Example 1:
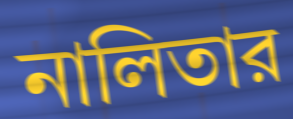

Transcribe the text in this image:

নালিতার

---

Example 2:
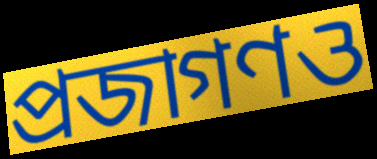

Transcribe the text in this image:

প্রজাগণও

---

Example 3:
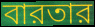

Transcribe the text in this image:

বারতার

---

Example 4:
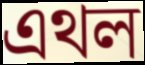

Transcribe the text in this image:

এথল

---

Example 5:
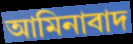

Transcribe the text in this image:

আমিনাবাদ